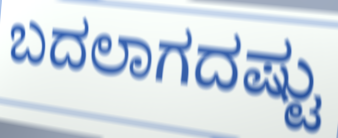
ಬದಲಾಗದಷ್ಟು